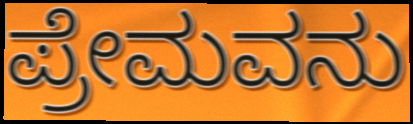
ಪ್ರೇಮವನು